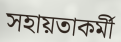
সহায়তাকর্মী